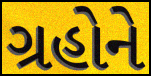
ગ્રહોને